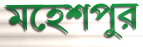
মহেশপুর